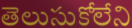
తెలుసుకోలేని